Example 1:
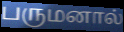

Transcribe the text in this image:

பருமனால்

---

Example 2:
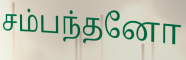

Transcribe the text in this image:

சம்பந்தனோ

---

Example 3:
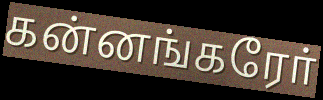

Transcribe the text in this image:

கன்னங்கரேர்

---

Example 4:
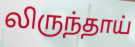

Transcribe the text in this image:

லிருந்தாய்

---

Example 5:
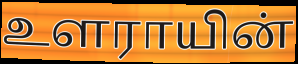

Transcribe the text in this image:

உளராயின்